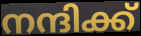
നന്ദിക്ക്